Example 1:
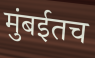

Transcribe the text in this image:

मुंबईतच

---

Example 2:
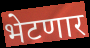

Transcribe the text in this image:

भेटणार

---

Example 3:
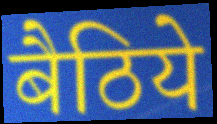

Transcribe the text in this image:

बैठिये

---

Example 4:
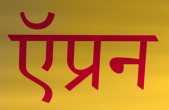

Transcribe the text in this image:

ऍप्रन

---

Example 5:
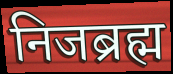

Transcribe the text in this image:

निजब्रह्म